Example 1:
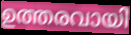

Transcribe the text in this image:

ഉത്തരവായി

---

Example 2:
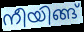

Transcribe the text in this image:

നീയിങ്ങ്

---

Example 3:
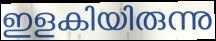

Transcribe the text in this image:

ഇളകിയിരുന്നു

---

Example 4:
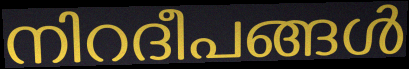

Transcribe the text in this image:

നിറദീപങ്ങൾ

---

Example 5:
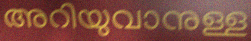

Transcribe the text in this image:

അറിയുവാനുള്ള